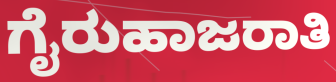
ಗೈರುಹಾಜರಾತಿ